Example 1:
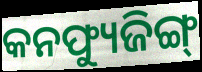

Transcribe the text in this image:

କନଫ୍ୟୁଜିଙ୍ଗ୍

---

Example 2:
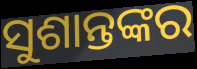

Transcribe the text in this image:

ସୁଶାନ୍ତଙ୍କର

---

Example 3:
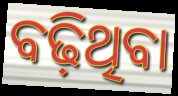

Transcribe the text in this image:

ବଢ଼ିଥିବା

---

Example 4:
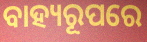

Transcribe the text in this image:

ବାହ୍ୟରୂପରେ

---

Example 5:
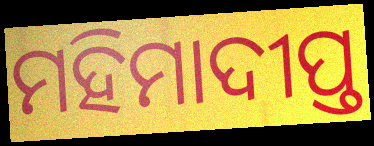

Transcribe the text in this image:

ମହିମାଦୀପ୍ତ